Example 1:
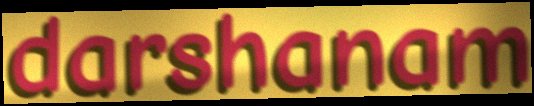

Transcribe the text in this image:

darshanam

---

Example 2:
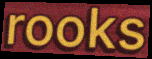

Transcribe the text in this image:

rooks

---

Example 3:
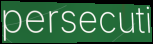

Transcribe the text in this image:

persecuti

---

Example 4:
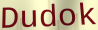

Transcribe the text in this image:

Dudok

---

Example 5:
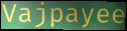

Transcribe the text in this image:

Vajpayee